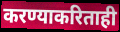
करण्याकरिताही